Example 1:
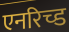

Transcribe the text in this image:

एनरिच्ड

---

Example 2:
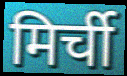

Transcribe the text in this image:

मिर्ची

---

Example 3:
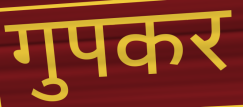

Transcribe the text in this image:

गुपकर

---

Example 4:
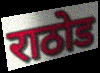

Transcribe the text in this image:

राठोड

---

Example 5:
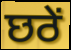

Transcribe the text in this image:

छठें